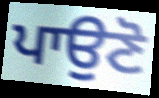
ਪਾਉਣੋ